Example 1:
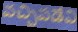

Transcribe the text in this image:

వచ్చిపడేవి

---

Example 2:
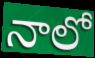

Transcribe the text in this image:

నాలో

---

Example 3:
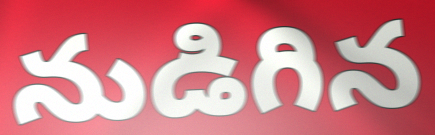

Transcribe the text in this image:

నుడిగిన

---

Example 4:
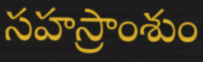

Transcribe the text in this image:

సహస్రాంశుం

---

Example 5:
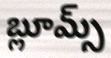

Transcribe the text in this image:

బ్లూమ్స్